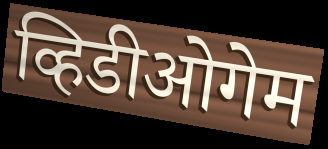
व्हिडीओगेम